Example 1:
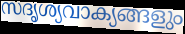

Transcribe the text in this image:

സദൃശ്യവാക്യങ്ങളും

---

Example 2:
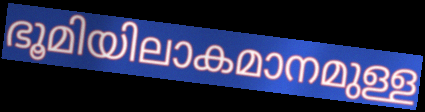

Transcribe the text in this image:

ഭൂമിയിലാകമാനമുള്ള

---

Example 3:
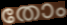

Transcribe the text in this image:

തോം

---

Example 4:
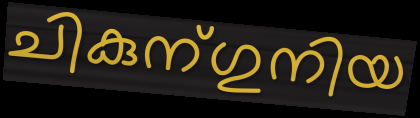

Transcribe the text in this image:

ചികുന്ഗുനിയ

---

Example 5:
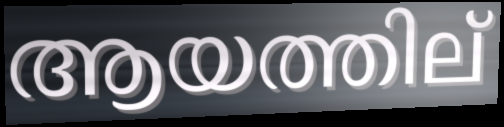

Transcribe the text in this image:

ആയത്തില്